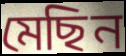
মেছিন